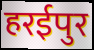
हरईपुर